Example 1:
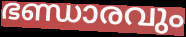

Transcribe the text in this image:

ഭണ്ഡാരവും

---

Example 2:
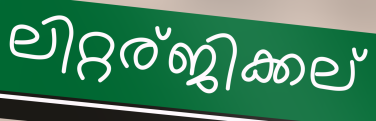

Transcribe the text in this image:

ലിറ്റര്ജിക്കല്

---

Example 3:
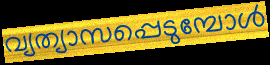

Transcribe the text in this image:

വ്യത്യാസപ്പെടുമ്പോൾ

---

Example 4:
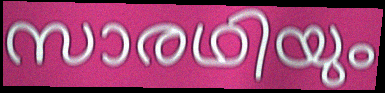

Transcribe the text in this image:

സാരഥിയും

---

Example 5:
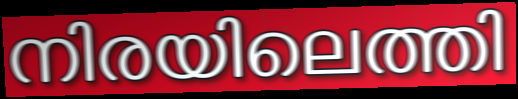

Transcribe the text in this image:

നിരയിലെത്തി